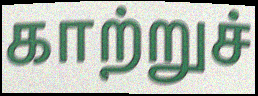
காற்றுச்